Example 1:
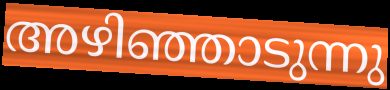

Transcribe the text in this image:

അഴിഞ്ഞാടുന്നു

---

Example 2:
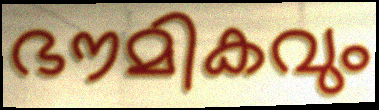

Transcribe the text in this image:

ഭൗമികവും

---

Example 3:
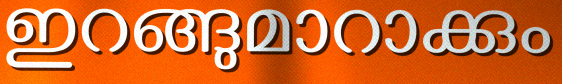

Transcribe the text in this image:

ഇറങ്ങുമാറാക്കും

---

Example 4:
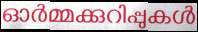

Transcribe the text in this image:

ഓർമ്മക്കുറിപ്പുകൾ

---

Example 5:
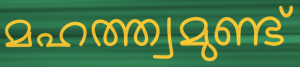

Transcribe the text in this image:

മഹത്ത്വമുണ്ട്